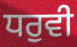
ਧਰੁਵੀ